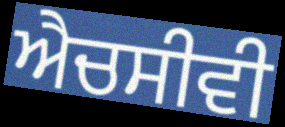
ਐਚਸੀਵੀ